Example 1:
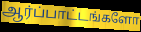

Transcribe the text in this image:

ஆர்ப்பாட்டங்களோ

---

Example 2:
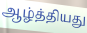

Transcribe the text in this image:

ஆழ்த்தியது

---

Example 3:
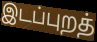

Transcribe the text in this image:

இடப்புறத்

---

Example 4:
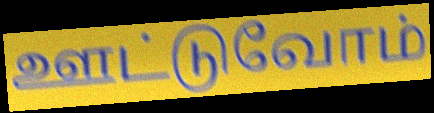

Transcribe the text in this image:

ஊட்டுவோம்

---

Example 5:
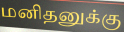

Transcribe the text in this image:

மனிதனுக்கு